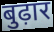
बुढ़ार